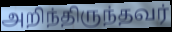
அறிந்திருந்தவர்